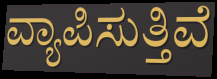
ವ್ಯಾಪಿಸುತ್ತಿವೆ